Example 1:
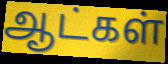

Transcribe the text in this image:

ஆட்கள்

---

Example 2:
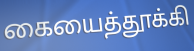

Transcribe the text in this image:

கையைத்தூக்கி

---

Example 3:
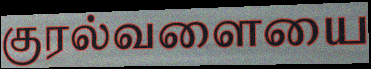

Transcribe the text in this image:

குரல்வளையை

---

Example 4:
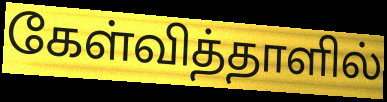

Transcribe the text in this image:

கேள்வித்தாளில்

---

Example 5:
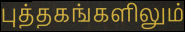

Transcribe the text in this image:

புத்தகங்களிலும்